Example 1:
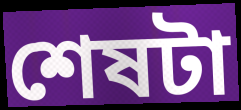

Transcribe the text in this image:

শেষটা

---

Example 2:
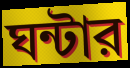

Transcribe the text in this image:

ঘন্টার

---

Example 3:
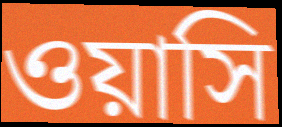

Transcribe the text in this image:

ওয়াসি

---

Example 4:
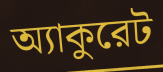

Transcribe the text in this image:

অ্যাকুরেট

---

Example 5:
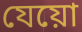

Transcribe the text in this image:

যেয়ো